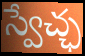
స్వేచ్ఛ